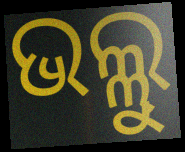
ଭଲ୍ଲୁ